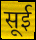
सूई